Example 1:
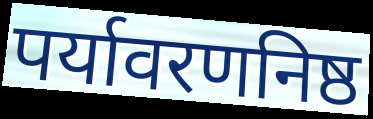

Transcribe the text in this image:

पर्यावरणनिष्ठ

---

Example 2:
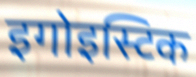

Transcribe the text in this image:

इगोइस्टिक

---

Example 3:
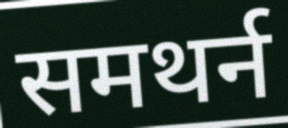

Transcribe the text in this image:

समथर्न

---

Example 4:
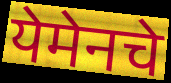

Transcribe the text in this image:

येमेनचे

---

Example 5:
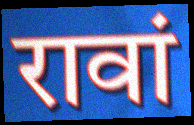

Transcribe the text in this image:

रावां